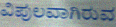
ವಿಪುಲವಾಗಿರುವ